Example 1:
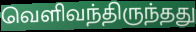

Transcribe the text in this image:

வெளிவந்திருந்தது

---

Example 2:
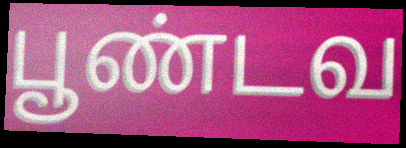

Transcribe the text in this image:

பூண்டவ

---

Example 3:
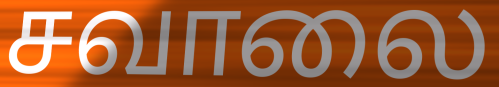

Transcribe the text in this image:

சவாலை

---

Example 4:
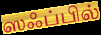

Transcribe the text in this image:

ஸஃப்பில்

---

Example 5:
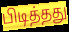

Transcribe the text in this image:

பிடித்தது